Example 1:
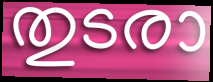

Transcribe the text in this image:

തുടരാ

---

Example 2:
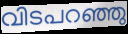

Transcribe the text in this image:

വിടപറഞ്ഞു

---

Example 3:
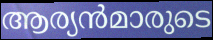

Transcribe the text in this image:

ആര്യൻമാരുടെ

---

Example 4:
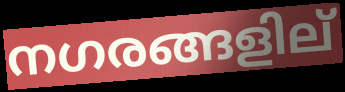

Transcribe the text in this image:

നഗരങ്ങളില്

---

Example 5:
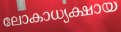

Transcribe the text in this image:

ലോകാധ്യക്ഷായ